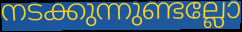
നടക്കുന്നുണ്ടല്ലോ